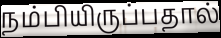
நம்பியிருப்பதால்